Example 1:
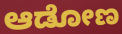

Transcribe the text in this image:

ಆಡೋಣ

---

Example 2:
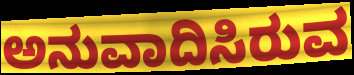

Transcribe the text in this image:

ಅನುವಾದಿಸಿರುವ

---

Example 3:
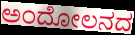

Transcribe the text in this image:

ಅಂದೋಲನದ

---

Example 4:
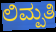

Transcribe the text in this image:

ಲಿಮ್ಪತಿ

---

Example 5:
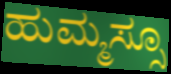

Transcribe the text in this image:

ಹುಮ್ಮಸ್ಸೂ